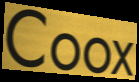
Coox